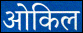
ओकिल